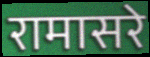
रामासरे